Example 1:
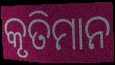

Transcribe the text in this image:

କୃତିମାନ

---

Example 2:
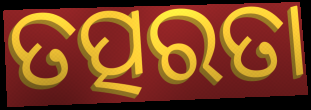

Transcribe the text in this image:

ତତ୍ପରତା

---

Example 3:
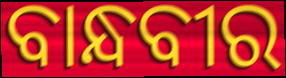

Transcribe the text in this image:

ବାନ୍ଧବୀର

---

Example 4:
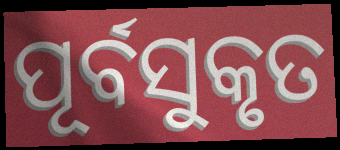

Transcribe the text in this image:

ପୂର୍ବସୁକୃତ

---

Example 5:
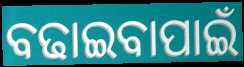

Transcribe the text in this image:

ବଢାଇବାପାଇଁ